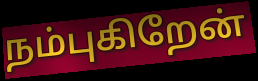
நம்புகிறேன்